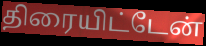
திரையிட்டேன்